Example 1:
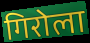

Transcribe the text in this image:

गिरोला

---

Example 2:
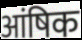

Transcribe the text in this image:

आंषिक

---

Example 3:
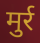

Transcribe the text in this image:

मुर्र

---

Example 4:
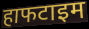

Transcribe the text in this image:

हाफटाइम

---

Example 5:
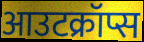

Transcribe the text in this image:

आउटक्रॉप्स